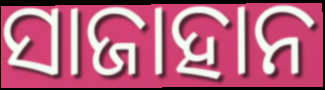
ସାଜାହାନ